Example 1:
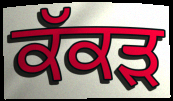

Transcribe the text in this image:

ਕੱਕਡ਼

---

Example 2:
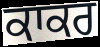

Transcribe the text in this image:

ਕਾਕਰ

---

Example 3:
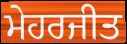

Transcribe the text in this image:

ਮੇਹਰਜੀਤ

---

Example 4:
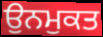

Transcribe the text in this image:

ਉਨਮੁਕਤ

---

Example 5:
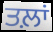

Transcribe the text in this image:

ਤਲ਼ਾਂ